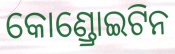
କୋଣ୍ଡ୍ରୋଇଟିନ